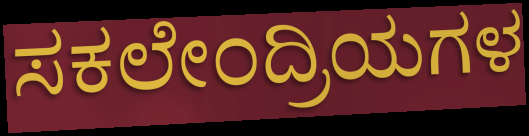
ಸಕಲೇಂದ್ರಿಯಗಳ